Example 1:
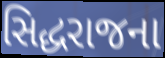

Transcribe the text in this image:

સિદ્ધરાજના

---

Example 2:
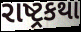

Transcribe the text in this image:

રાષ્ટ્રકથા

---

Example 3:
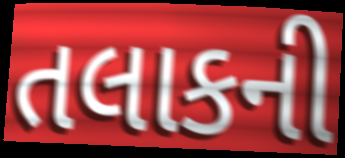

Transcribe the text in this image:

તલાકની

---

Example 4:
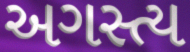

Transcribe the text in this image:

અગસ્ત્ય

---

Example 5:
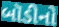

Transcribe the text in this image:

બૉડીનો